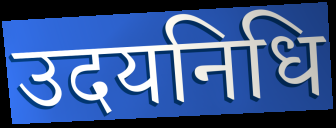
उदयनिधि